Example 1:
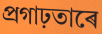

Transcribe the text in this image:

প্ৰগাঢ়তাৰে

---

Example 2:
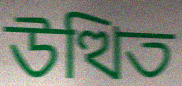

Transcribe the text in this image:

উত্থিত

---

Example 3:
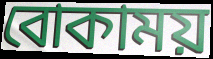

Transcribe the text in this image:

বোকাময়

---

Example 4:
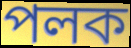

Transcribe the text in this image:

পলক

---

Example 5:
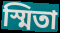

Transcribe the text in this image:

স্মিতা